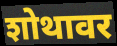
शोथावर